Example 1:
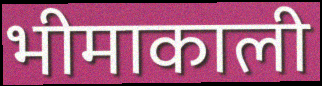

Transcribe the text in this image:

भीमाकाली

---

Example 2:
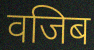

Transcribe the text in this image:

वजिब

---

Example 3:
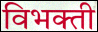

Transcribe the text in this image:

विभक्ती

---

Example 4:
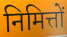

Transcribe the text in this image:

निमित्तों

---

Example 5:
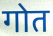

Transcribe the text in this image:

गोत